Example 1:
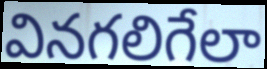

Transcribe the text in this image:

వినగలిగేలా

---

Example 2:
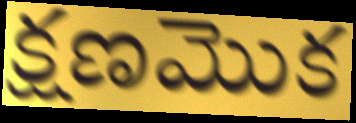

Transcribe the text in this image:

క్షణమొక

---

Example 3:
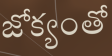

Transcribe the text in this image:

జోక్యంతో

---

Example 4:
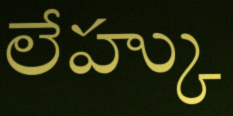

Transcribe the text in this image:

లేహ్కు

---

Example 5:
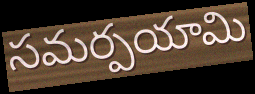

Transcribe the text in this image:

సమర్పయామి